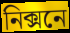
নিক্সনে